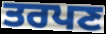
ਤਰਪਣ